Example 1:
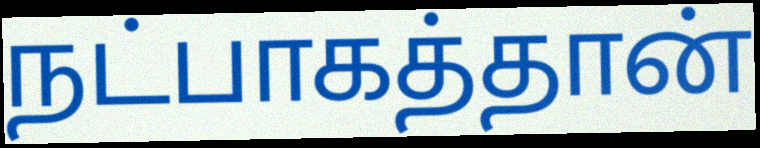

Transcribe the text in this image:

நட்பாகத்தான்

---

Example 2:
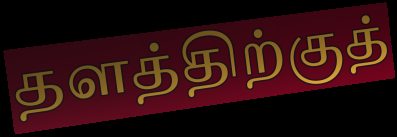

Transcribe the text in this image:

தளத்திற்குத்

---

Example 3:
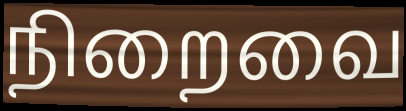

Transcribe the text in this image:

நிறைவை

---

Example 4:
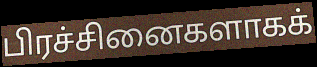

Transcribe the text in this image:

பிரச்சினைகளாகக்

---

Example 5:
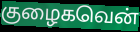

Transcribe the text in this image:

குழைகவென்